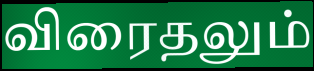
விரைதலும்